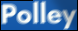
Polley